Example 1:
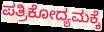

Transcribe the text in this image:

ಪತ್ರಿಕೋದ್ಯಮಕ್ಕೆ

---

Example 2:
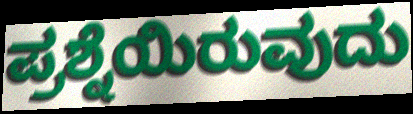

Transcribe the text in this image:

ಪ್ರಶ್ನೆಯಿರುವುದು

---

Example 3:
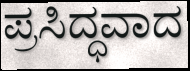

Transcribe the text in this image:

ಪ್ರಸಿದ್ಧವಾದ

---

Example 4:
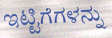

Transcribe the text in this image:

ಇಟ್ಟಿಗೆಗಳನ್ನು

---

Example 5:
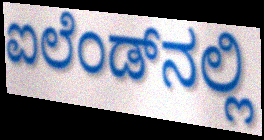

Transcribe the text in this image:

ಐಲೆಂಡ್‌ನಲ್ಲಿ